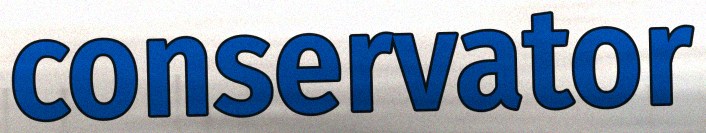
conservator